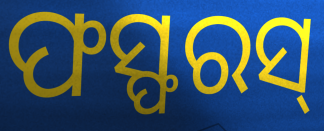
ଫସ୍ଫରସ୍